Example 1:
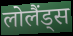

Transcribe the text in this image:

लोलैंड्स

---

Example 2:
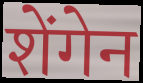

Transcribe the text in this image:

शेंगेन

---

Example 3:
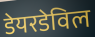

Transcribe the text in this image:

डेयरडेविल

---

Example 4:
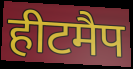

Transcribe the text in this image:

हीटमैप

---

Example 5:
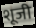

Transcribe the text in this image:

शूजी